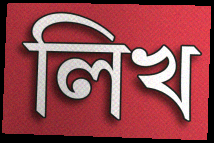
লিখ